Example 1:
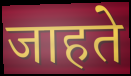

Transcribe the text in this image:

जाहते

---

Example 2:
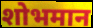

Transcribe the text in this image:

शोभमान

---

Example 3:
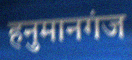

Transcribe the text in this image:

हनुमानगंज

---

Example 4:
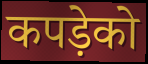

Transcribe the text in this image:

कपड़ेको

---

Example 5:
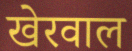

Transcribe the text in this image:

खेरवाल